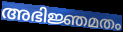
അഭിജ്ഞമതം